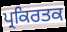
ਪ੍ਰਕਿਰਤਕ